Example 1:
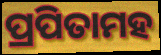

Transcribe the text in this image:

ପ୍ରପିତାମହ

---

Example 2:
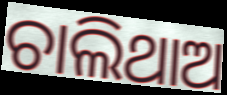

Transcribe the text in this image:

ଚାଲିଥାଅ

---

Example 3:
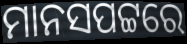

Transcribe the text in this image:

ମାନସପଟ୍ଟରେ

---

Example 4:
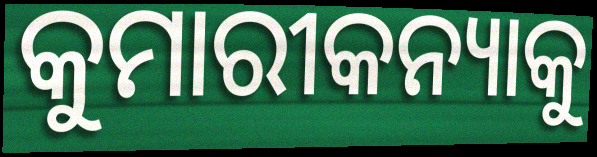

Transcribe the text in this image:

କୁମାରୀକନ୍ୟାକୁ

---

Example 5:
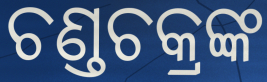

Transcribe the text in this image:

ଚଣ୍ଡଚକ୍ରଙ୍କ